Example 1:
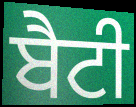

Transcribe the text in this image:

ਬੈਟੀ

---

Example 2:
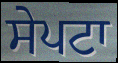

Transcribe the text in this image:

ਸੇਪਟਾ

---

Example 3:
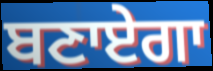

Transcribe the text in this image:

ਬਣਾਏਗਾ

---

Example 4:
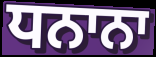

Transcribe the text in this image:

ਧਨਾਨਾ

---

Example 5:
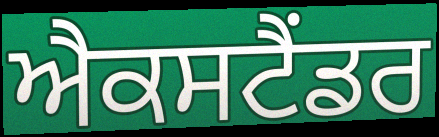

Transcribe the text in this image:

ਐਕਸਟੈਂਡਰ